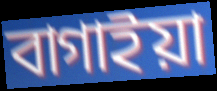
বাগাইয়া